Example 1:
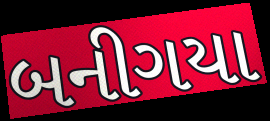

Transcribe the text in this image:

બનીગયા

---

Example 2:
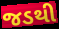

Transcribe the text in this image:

જડથી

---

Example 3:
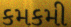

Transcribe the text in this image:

કમકમી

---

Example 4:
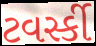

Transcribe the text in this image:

ટવર્સ્કી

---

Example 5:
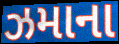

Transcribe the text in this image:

ઝમાના